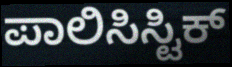
ಪಾಲಿಸಿಸ್ಟಿಕ್